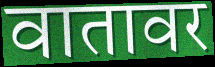
वातावर